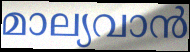
മാല്യവാൻ